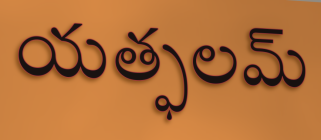
యత్ఫలమ్